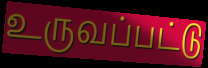
உருவப்பட்டு